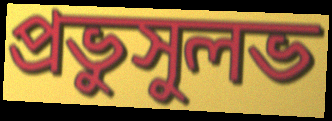
প্রভুসুলভ